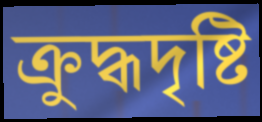
ক্রুদ্ধদৃষ্টি